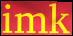
imk